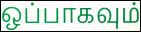
ஒப்பாகவும்